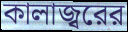
কালাজ্বরের